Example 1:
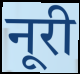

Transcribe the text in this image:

नूरी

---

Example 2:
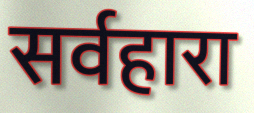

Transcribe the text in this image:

सर्वहारा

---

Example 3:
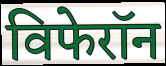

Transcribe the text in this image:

विफेरॉन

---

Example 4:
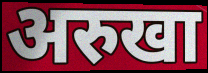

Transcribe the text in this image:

अरुखा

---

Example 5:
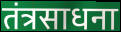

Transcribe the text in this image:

तंत्रसाधना